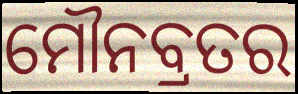
ମୌନବ୍ରତର